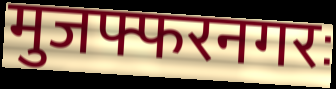
मुजफ्फरनगरः